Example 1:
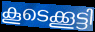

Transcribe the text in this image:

കൂടെക്കൂട്ടി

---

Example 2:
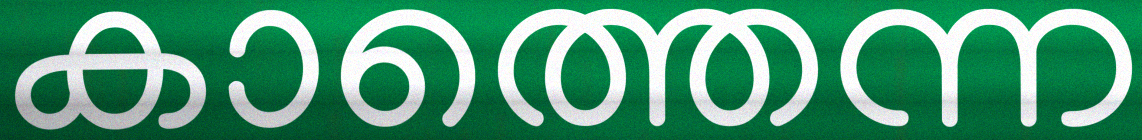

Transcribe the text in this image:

കാത്തെന്ന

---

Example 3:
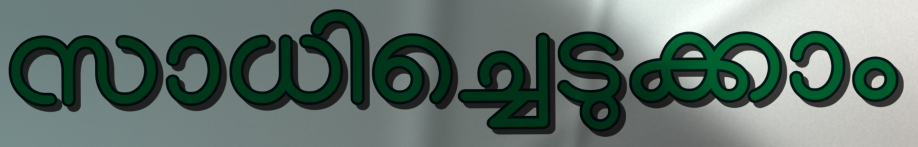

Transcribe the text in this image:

സാധിച്ചെടുക്കാം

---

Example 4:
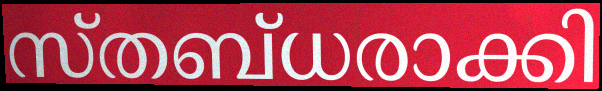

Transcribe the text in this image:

സ്തബ്ധരാക്കി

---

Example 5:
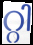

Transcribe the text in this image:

റ്റി